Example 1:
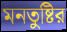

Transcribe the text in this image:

মনতুষ্টির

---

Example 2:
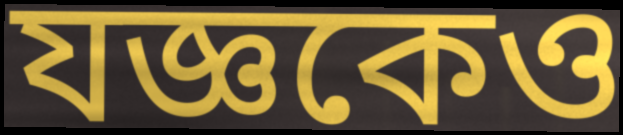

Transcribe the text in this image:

যজ্ঞকেও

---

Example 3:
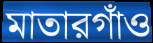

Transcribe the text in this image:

মাতারগাঁও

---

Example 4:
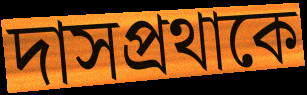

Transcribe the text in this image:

দাসপ্রথাকে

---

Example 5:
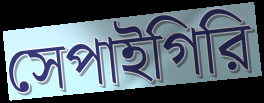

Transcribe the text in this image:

সেপাইগিরি